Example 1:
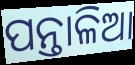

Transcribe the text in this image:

ପନ୍ତାଳିଆ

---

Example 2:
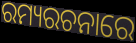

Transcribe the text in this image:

ରମ୍ୟରଚନାରେ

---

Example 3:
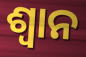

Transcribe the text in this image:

ଶ୍ୱାନ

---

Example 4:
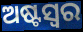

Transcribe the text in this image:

ଅଷ୍ଟସ୍ୱର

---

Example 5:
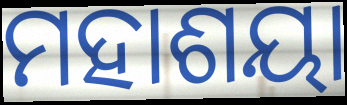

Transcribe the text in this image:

ମହାଶୟା